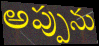
అప్పును